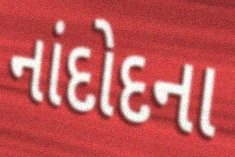
નાંદોદના